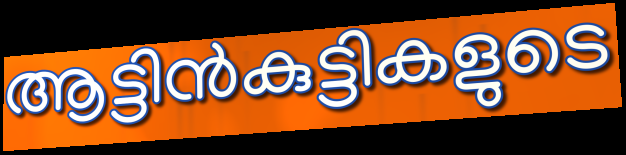
ആട്ടിൻകുട്ടികളുടെ